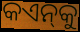
କଏନ୍‌କୁ